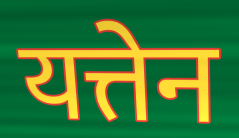
यत्तेन